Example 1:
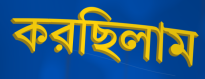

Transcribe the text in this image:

করছিলাম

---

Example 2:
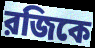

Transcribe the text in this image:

রজিকে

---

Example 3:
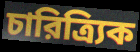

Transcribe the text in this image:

চারিত্র্যিক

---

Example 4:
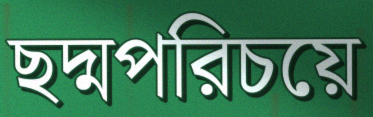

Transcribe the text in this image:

ছদ্মপরিচয়ে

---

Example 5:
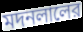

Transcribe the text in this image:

মদনলালের